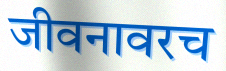
जीवनावरच